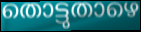
തൊട്ടുതാഴെ